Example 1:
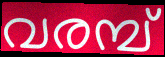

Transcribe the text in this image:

വരമ്പ്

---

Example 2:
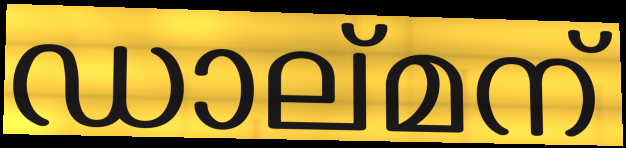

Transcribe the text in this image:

ഡാല്മന്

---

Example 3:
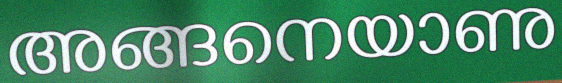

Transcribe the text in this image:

അങ്ങനെയാണു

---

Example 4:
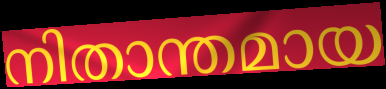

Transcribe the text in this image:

നിതാന്തമായ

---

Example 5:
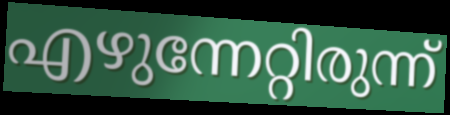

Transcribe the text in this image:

എഴുന്നേറ്റിരുന്ന്